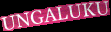
UNGALUKU